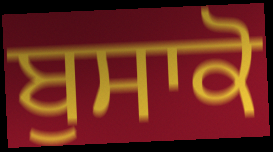
ਬੁਸਾਕੋ